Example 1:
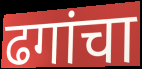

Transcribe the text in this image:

ढगांचा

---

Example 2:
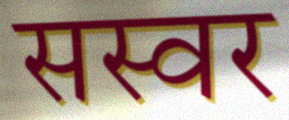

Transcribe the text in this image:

सस्वर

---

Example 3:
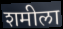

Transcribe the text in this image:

शमीला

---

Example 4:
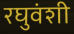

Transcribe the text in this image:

रघुवंशी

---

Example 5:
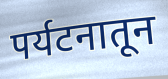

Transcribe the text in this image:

पर्यटनातून